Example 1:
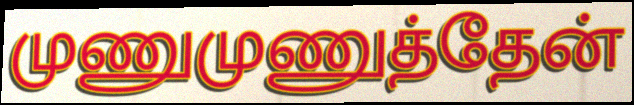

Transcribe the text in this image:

முணுமுணுத்தேன்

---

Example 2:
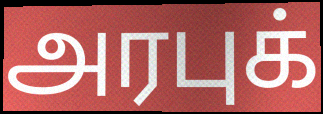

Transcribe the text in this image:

அரபுக்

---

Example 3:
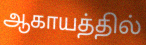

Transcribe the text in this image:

ஆகாயத்தில்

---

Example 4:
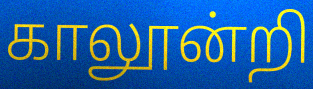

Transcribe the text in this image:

காலூன்றி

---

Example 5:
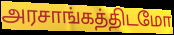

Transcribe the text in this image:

அரசாங்கத்திடமோ